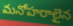
మనోహరాలైన